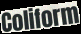
Coliform